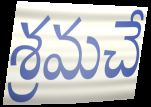
శ్రమచే